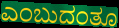
ಎಂಬುದಂತೂ